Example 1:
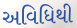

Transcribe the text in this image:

અવિધિથી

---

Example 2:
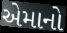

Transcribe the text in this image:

એમાનો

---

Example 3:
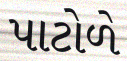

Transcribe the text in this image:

પાટોળે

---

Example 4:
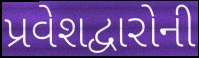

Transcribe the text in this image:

પ્રવેશદ્વારોની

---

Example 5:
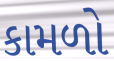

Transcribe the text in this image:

કામળો